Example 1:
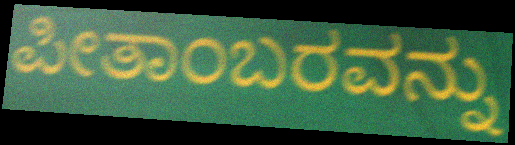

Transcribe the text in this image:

ಪೀತಾಂಬರವನ್ನು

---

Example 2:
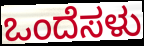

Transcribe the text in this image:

ಒಂದೆಸಳು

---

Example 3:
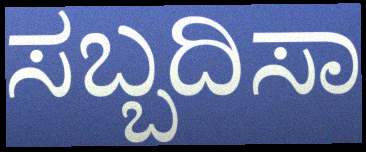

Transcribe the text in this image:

ಸಬ್ಬದಿಸಾ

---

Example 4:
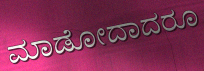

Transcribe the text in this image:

ಮಾಡೋದಾದರೂ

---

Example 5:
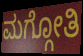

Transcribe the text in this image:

ಮಗ್ಗೋತಿ